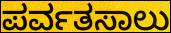
ಪರ್ವತಸಾಲು